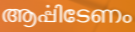
ആൎപ്പിടേണം